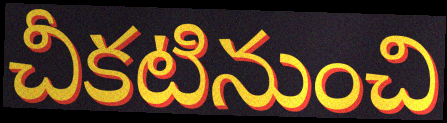
చీకటినుంచి